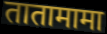
तातामामा